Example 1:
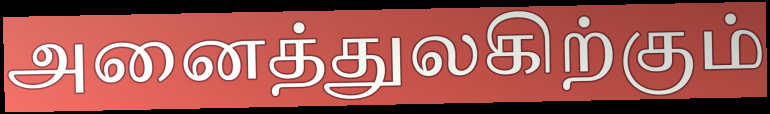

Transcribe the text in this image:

அனைத்துலகிற்கும்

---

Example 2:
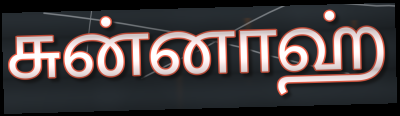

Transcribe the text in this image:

சுன்னாஹ்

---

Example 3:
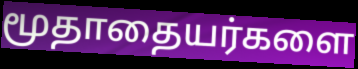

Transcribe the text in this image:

மூதாதையர்களை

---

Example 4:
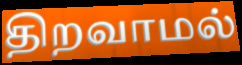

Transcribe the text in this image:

திறவாமல்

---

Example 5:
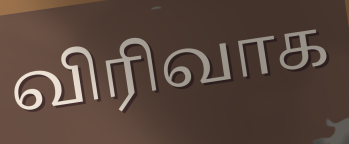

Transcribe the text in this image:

விரிவாக